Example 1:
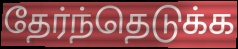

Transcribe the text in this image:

தேர்ந்தெடுக்க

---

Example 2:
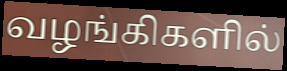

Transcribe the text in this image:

வழங்கிகளில்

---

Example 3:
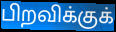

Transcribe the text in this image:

பிறவிக்குக்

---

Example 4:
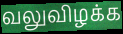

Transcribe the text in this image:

வலுவிழக்க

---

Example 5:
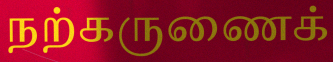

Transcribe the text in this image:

நற்கருணைக்